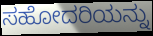
ಸಹೋದರಿಯನ್ನು